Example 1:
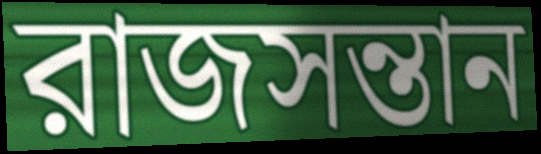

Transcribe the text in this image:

রাজসন্তান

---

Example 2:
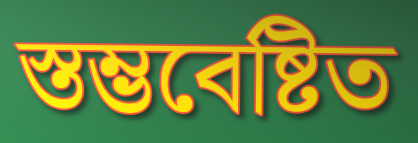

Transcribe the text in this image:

স্তম্ভবেষ্টিত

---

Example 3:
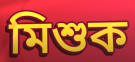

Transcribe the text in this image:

মিশুক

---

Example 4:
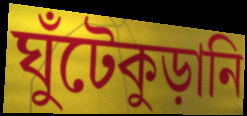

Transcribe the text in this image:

ঘুঁটেকুড়ানি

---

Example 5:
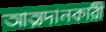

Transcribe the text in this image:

আত্মদানকারী